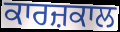
ਕਾਰਜ਼ਕਾਲ